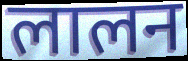
लालन